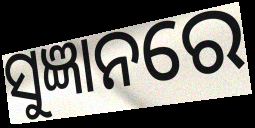
ସୁଜ୍ଞାନରେ